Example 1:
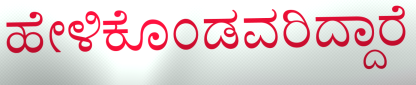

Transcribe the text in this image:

ಹೇಳಿಕೊಂಡವರಿದ್ದಾರೆ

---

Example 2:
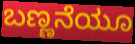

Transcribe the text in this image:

ಬಣ್ಣನೆಯೂ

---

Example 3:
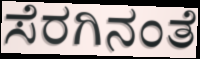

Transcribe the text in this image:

ಸೆರಗಿನಂತೆ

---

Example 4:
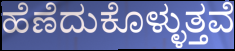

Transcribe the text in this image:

ಹೆಣೆದುಕೊಳ್ಳುತ್ತವೆ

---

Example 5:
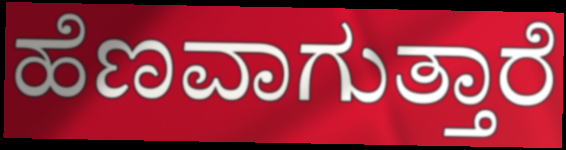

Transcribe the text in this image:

ಹೆಣವಾಗುತ್ತಾರೆ